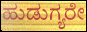
ಹುಡುಗ್ಯರೇ